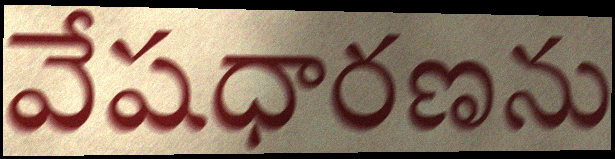
వేషధారణను